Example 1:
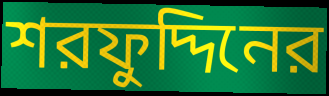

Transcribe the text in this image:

শরফুদ্দিনের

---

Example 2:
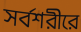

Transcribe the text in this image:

সর্বশরীরে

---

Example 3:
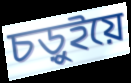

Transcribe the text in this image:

চড়ুইয়ে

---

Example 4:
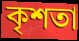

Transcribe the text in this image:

কৃশতা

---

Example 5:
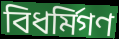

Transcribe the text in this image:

বিধর্মিগণ